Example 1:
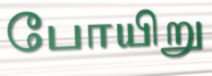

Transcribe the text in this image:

போயிறு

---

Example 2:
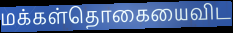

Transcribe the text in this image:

மக்கள்தொகையைவிட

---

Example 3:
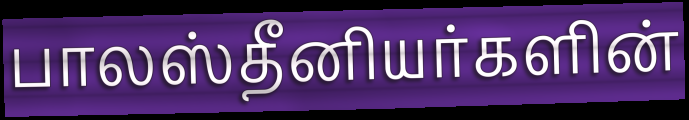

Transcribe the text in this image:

பாலஸ்தீனியர்களின்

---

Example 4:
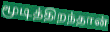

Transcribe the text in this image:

மூடித்திறந்தான்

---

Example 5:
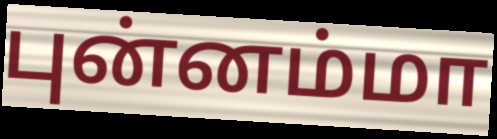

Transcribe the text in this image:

புன்னம்மா